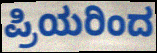
ಪ್ರಿಯರಿಂದ